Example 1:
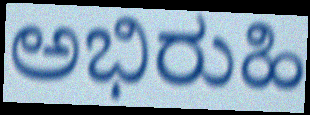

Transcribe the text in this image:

ಅಭಿರುಹಿ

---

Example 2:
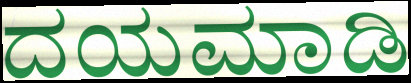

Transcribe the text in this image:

ದಯಮಾಡಿ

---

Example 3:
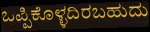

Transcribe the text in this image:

ಒಪ್ಪಿಕೊಳ್ಳದಿರಬಹುದು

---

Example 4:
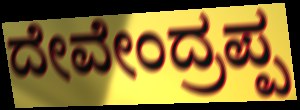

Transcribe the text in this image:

ದೇವೇಂದ್ರಪ್ಪ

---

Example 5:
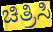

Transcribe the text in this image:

ಚಿತ್ರಿಸಿ